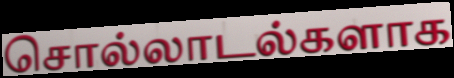
சொல்லாடல்களாக